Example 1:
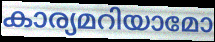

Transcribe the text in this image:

കാര്യമറിയാമോ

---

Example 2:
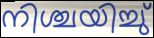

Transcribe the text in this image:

നിശ്ചയിച്ചു്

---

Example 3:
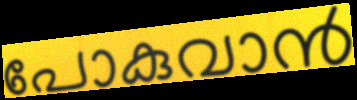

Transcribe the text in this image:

പോകുവാൻ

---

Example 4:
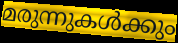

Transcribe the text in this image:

മരുന്നുകൾക്കും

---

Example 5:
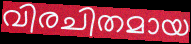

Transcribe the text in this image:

വിരചിതമായ